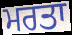
ਮਰਤਾ